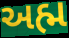
અહ્મ